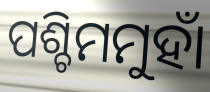
ପଶ୍ଚିମମୁହାଁ